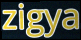
zigya